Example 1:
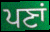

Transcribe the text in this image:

ਪਣਾਂ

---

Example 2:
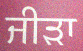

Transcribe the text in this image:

ਜੀੜਾ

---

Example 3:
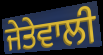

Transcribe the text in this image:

ਜੇਤੇਵਾਲੀ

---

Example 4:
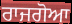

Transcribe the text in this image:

ਰਾਜਗੋਆ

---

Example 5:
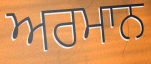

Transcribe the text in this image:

ਅਰਮਾਨ